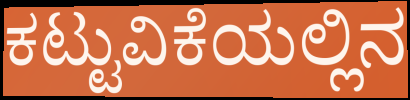
ಕಟ್ಟುವಿಕೆಯಲ್ಲಿನ